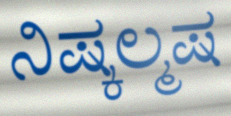
ನಿಷ್ಕಲ್ಮಷ